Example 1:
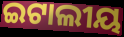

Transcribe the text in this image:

ଇଟାଲୀୟ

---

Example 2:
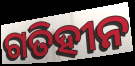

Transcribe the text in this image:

ଗତିହୀନ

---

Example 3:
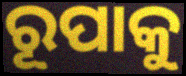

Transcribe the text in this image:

ରୂପାକୁ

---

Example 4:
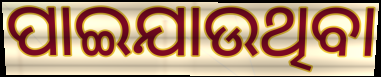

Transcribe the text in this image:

ପାଇଯାଉଥିବା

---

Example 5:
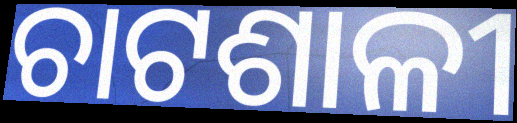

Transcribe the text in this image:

ଚାଟଶାଳୀ